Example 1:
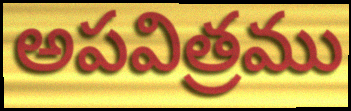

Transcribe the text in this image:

అపవిత్రము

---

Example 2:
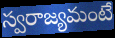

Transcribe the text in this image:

స్వరాజ్యమంటే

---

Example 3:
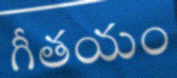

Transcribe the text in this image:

గీతయం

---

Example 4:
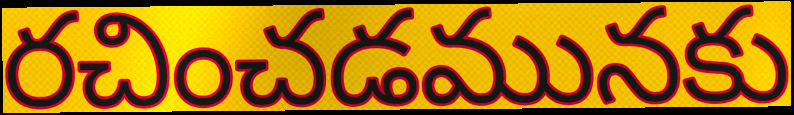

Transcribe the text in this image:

రచించడమునకు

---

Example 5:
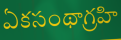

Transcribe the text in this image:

ఏకసంథాగ్రహి